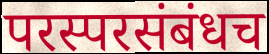
परस्परसंबंधच